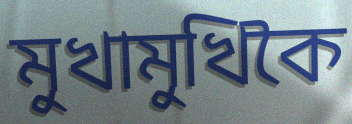
মুখামুখিকৈ